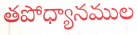
తపోధ్యానముల